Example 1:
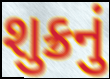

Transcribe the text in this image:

શુક્રનું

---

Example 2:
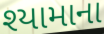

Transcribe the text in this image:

શ્યામાના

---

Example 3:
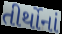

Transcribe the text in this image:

તીર્થોનાં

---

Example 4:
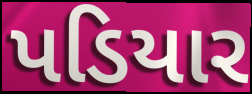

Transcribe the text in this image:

પડિયાર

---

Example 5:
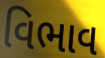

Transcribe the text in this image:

વિભાવ